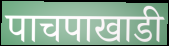
पाचपाखाडी